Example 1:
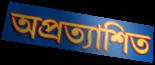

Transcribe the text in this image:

অপ্ৰত্যাশিত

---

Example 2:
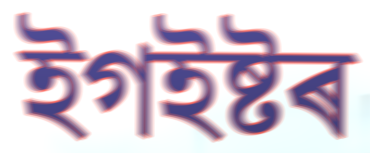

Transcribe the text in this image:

ইগইষ্টৰ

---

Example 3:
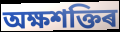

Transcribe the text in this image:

অক্ষশক্তিৰ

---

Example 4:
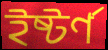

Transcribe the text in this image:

ইষ্টৰ্ণ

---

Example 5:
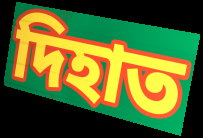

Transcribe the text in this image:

দিহাত